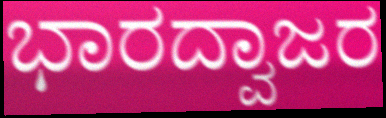
ಭಾರದ್ವಾಜರ